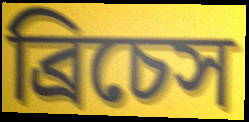
ব্রিচেস